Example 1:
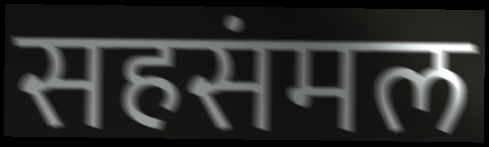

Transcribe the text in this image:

सहसंमल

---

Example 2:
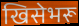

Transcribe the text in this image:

खिसेभरू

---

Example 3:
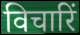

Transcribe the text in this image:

विचारिं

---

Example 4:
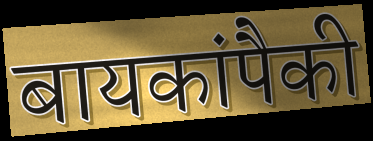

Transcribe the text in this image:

बायकांपैकी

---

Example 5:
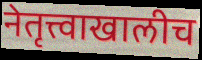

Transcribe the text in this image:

नेतृत्त्वाखालीच